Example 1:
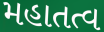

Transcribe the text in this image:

મહાતત્વ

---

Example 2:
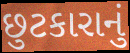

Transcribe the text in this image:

છુટકારાનું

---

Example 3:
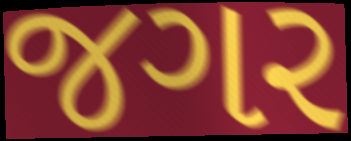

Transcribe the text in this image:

જગર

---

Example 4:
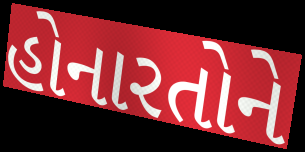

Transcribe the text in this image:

હોનારતોને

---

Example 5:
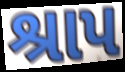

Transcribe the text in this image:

શ્રાપ